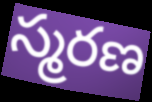
స్మరణ